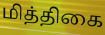
மித்திகை